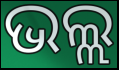
ଭଲ୍ଲ